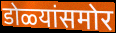
डोळ्यांसमोर